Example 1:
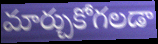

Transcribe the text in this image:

మార్చుకోగలడా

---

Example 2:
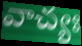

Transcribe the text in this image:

వాచ్యః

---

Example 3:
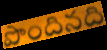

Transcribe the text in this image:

పొందినది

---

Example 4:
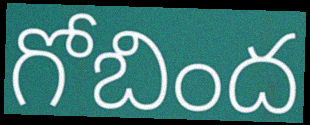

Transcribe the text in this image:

గోబింద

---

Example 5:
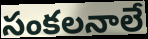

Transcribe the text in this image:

సంకలనాలే